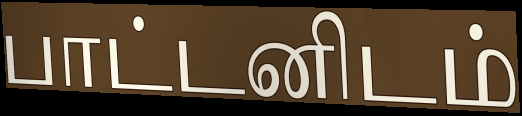
பாட்டனிடம்